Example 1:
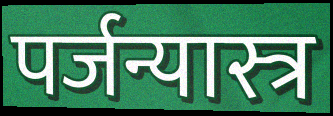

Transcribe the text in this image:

पर्जन्यास्त्र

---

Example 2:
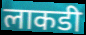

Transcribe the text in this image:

लाकडी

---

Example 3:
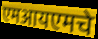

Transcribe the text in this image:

एमआयएमचे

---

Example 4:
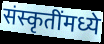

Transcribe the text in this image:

संस्कृतींमध्ये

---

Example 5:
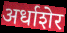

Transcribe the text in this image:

अर्धाशेर